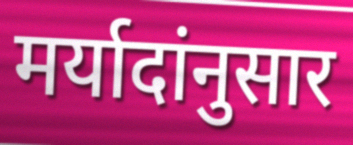
मर्यादांनुसार